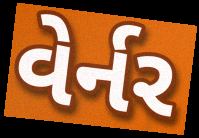
વેર્નર